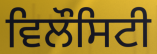
ਵਿਲੌਸਿਟੀ